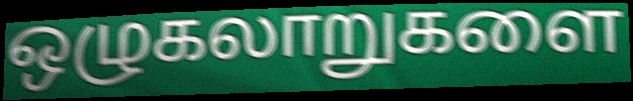
ஒழுகலாறுகளை